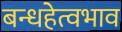
बन्धहेत्वभाव